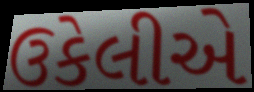
ઉકેલીએ